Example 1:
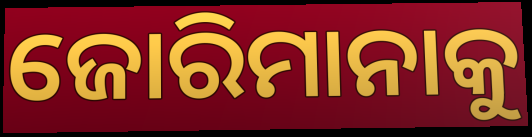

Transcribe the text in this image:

ଜୋରିମାନାକୁ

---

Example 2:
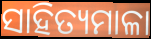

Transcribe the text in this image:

ସାହିତ୍ୟମାଳା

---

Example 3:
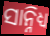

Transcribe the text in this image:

ସାନ୍ନିଧ୍ୟ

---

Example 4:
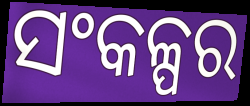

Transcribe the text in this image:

ସଂକଳ୍ପର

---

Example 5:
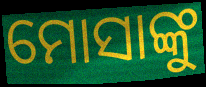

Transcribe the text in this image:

ମୋସାଙ୍କୁ